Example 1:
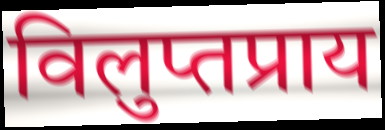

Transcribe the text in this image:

विलुप्तप्राय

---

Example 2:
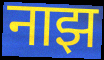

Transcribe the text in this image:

नाझ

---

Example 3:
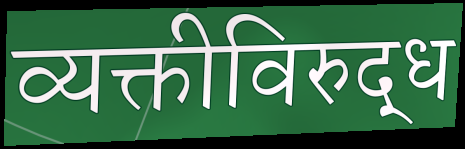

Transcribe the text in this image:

व्यक्तीविरुद्ध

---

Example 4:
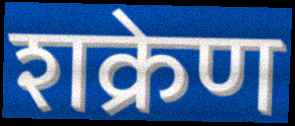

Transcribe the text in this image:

शक्रेण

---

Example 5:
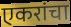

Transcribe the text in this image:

एकरांचा